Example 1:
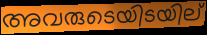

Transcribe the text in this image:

അവരുടെയിടയില്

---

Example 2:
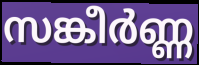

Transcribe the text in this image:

സങ്കീർണ്ണ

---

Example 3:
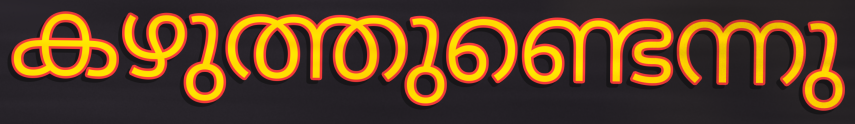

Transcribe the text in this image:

കഴുത്തുണ്ടെന്നു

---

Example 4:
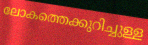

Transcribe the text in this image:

ലോകത്തെക്കുറിച്ചുള്ള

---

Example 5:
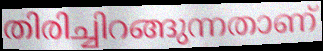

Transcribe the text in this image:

തിരിച്ചിറങ്ങുന്നതാണ്